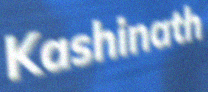
Kashinath